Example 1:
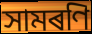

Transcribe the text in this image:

সামৰণি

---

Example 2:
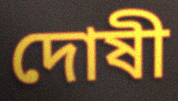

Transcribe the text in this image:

দোষী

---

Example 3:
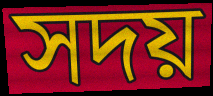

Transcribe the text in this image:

সদয়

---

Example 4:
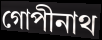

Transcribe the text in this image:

গোপীনাথ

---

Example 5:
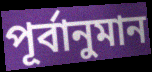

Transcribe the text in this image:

পূৰ্বানুমান